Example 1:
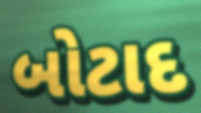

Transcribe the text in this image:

બોટાદ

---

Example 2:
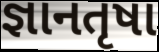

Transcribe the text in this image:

જ્ઞાનતૃષા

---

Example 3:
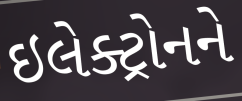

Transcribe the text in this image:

ઇલેક્ટ્રોનને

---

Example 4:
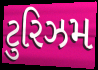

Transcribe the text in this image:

ટુરિઝમ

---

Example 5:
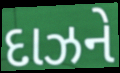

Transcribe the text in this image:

દાઝને